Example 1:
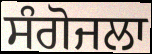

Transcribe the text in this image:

ਸੰਗੋਜਲਾ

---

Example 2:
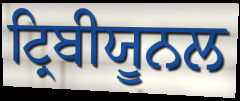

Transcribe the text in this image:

ਟ੍ਰਿਬੀਯੂਨਲ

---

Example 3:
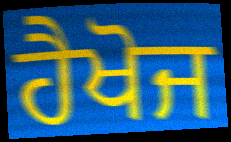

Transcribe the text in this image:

ਹੈਖੋਜ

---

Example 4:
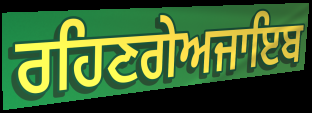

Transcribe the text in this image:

ਰਹਿਣਗੇਅਜਾਇਬ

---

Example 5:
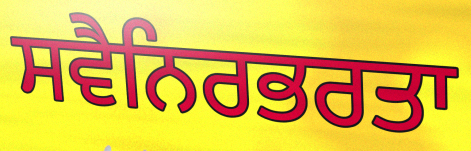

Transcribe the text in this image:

ਸਵੈਨਿਰਭਰਤਾ